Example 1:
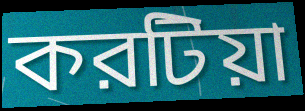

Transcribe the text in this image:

করটিয়া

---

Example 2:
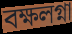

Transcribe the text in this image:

বক্ষলগ্না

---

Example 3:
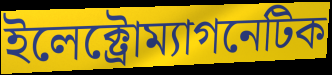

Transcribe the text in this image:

ইলেক্ট্রোম্যাগনেটিক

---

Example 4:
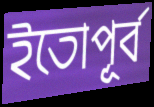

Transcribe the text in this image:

ইতোপূর্ব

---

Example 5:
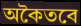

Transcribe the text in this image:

অকৈতবে